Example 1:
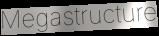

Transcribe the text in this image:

Megastructure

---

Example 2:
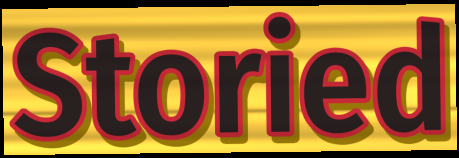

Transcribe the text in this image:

Storied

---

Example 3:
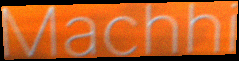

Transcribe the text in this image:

Machhi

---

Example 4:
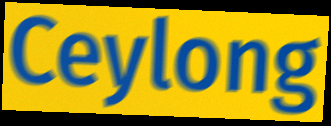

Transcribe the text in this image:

Ceylong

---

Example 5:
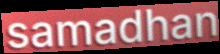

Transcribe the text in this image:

samadhan